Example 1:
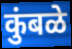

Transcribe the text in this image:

कुंबळे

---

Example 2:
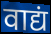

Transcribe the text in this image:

वाद्यं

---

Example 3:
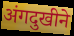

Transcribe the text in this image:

अंगदुखीने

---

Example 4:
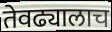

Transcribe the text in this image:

तेवढ्यालाच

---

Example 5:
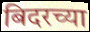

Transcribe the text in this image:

बिदरच्या